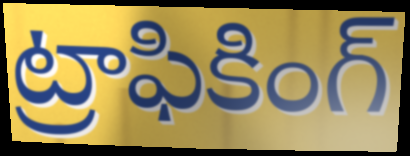
ట్రాఫికింగ్